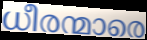
ധീരന്മാരെ